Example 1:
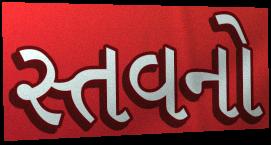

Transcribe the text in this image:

સ્તવનો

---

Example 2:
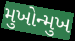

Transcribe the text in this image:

મુખોન્મુખ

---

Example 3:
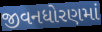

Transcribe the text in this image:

જીવનધોરણમાં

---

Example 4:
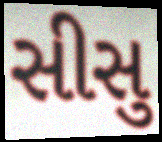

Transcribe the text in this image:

સીસુ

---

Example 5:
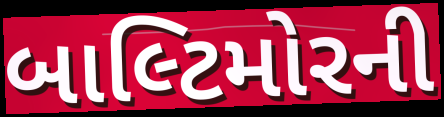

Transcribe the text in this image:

બાલ્ટિમોરની